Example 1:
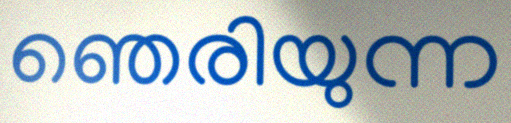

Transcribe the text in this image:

ഞെരിയുന്ന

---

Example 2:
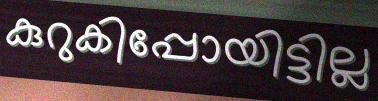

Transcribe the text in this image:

കുറുകിപ്പോയിട്ടില്ല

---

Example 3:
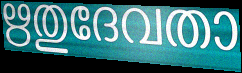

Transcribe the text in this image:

ഋതുദേവതാ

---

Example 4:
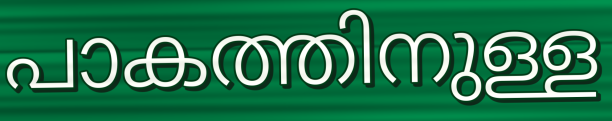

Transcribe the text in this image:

പാകത്തിനുള്ള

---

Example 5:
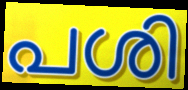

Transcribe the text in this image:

പശി